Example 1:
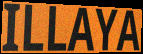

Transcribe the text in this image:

ILLAYA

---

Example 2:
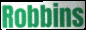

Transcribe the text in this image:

Robbins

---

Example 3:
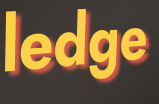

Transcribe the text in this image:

ledge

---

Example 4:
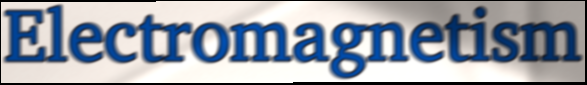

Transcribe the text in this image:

Electromagnetism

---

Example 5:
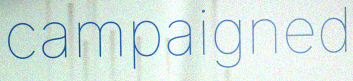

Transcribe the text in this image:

campaigned